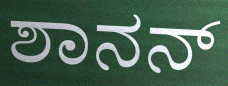
ಶಾನನ್